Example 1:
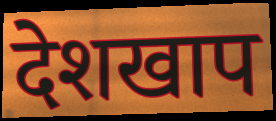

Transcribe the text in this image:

देशखाप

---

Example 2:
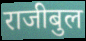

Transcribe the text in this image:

राजीबुल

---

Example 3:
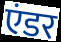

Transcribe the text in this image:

एंडर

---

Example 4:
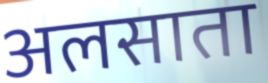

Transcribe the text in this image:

अलसाता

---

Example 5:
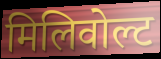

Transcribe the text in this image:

मिलिवोल्ट